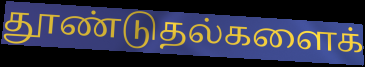
தூண்டுதல்களைக்